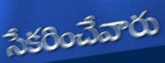
సేకరించేవారు